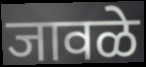
जावळे